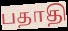
பதாதி